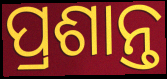
ପ୍ରଶାନ୍ତ